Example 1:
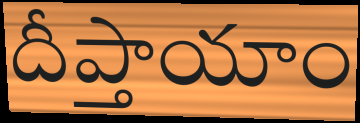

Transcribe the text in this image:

దీప్తాయాం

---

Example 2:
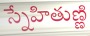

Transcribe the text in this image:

స్నేహితుణ్ణి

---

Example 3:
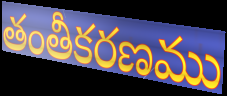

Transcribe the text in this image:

తంతీకరణము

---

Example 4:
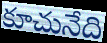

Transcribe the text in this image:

కూచునేది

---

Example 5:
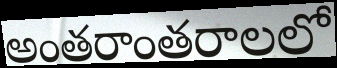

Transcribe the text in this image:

అంతరాంతరాలలో